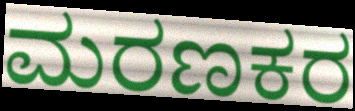
ಮರಣಕರ